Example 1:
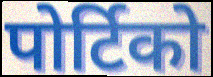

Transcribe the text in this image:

पोर्टिको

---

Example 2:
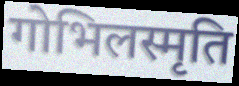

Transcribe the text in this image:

गोभिलस्मृति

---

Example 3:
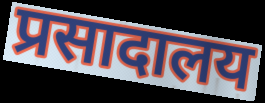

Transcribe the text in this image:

प्रसादालय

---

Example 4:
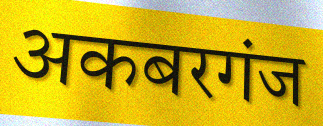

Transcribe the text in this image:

अकबरगंज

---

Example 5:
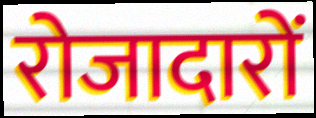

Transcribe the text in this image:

रोजादारों